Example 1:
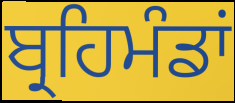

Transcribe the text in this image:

ਬ੍ਰਹਿਮੰਡਾਂ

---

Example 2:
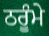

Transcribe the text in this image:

ਠਰੂੰਮੇ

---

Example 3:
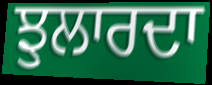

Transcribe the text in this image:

ਝੁਲਾਰਦਾ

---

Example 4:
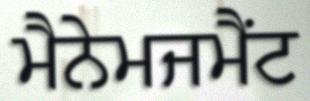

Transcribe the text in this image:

ਮੈਨੇਮਜਮੈਂਟ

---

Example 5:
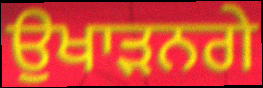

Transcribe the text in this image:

ਉਖਾੜਨਗੇ